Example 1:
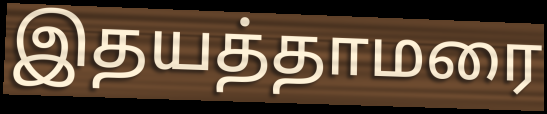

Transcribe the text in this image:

இதயத்தாமரை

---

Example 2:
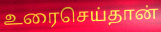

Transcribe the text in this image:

உரைசெய்தான்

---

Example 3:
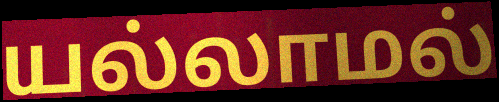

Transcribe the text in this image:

யல்லாமல்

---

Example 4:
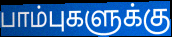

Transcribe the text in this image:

பாம்புகளுக்கு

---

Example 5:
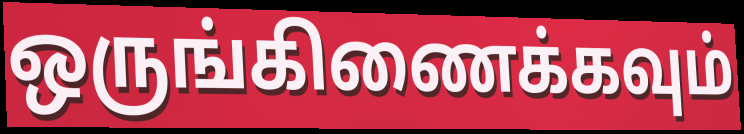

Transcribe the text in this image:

ஒருங்கிணைக்கவும்